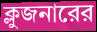
ক্লুজনারের